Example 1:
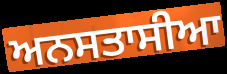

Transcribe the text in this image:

ਅਨਸਤਾਸੀਆ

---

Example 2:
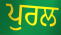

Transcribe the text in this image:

ਪੁਰਲ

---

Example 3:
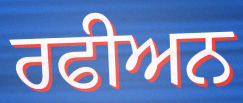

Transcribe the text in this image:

ਰਫੀਅਨ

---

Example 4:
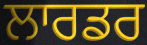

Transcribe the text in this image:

ਲਾਰਡਰ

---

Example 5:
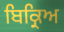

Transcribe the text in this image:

ਬਿਕ੍ਰਿਅ